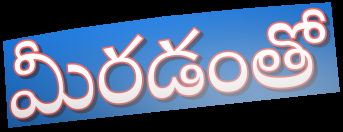
మీరడంతో